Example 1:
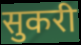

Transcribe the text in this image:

सुकरी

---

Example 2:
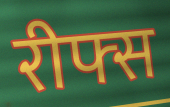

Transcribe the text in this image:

रीफ्स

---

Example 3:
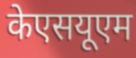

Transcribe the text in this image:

केएसयूएम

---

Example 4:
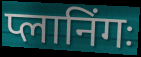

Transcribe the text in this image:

प्लानिंगः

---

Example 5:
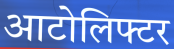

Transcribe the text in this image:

आटोलिफ्टर